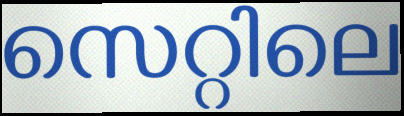
സെറ്റിലെ